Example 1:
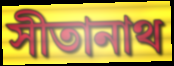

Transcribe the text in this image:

সীতানাথ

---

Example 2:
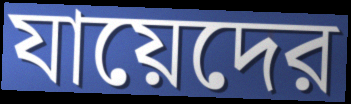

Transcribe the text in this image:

যায়েদের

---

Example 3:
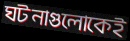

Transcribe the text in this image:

ঘটনাগুলোকেই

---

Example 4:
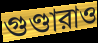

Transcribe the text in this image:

গুণ্ডারাও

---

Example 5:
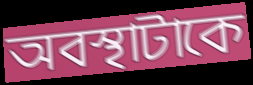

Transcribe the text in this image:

অবস্থাটাকে